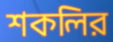
শকলির